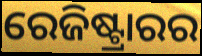
ରେଜିଷ୍ଟ୍ରାରର